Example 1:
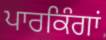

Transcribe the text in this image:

ਪਾਰਕਿੰਗਾਂ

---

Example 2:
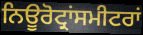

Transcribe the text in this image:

ਨਿਊਰੋਟ੍ਰਾਂਸਮੀਟਰਾਂ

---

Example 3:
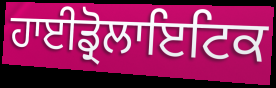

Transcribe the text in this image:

ਹਾਈਡ੍ਰੋਲਾਇਟਿਕ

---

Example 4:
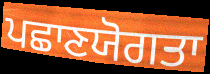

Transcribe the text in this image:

ਪਛਾਣਯੋਗਤਾ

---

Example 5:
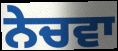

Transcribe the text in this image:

ਨੇਚਵਾ